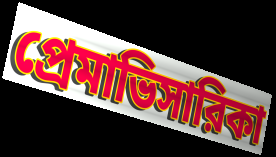
প্রেমাভিসারিকা